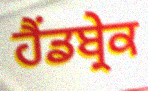
ਹੈਂਡਬ੍ਰੇਕ